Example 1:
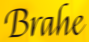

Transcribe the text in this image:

Brahe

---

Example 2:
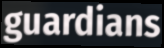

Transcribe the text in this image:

guardians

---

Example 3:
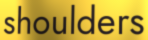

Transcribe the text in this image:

shoulders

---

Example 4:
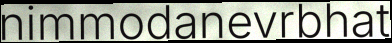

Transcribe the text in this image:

nimmodanevrbhat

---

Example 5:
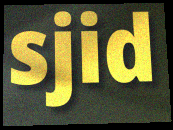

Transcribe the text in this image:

sjid